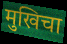
मुखिचा